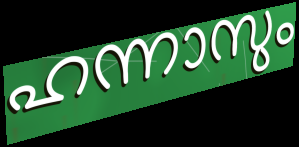
ഹന്നാസും